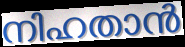
നിഹതാൻ